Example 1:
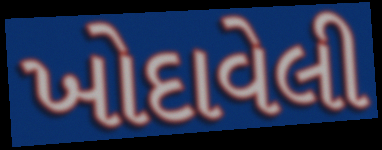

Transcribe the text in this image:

ખોદાવેલી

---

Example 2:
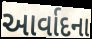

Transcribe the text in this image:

આર્વાદના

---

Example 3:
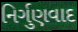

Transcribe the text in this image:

નિર્ગુણવાદ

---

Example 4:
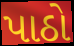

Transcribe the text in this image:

પાઠો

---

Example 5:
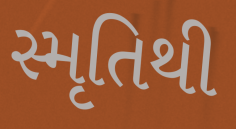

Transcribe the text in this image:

સ્મૃતિથી